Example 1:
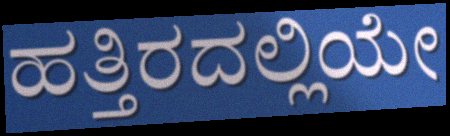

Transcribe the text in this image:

ಹತ್ತಿರದಲ್ಲಿಯೇ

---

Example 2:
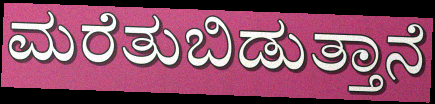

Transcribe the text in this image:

ಮರೆತುಬಿಡುತ್ತಾನೆ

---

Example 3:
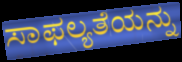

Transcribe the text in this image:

ಸಾಫಲ್ಯತೆಯನ್ನು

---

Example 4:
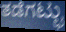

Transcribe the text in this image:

ತಡೆಗಟ್ಟು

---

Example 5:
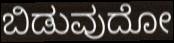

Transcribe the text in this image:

ಬಿಡುವುದೋ